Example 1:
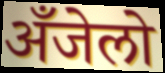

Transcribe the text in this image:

अँजेलो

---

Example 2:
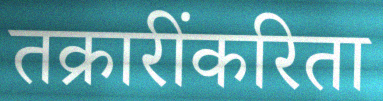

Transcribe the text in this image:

तक्रारींकरिता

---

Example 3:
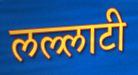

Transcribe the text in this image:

लल्लाटी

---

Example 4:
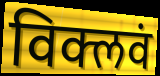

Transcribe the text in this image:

विक्लवं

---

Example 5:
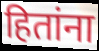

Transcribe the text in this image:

हितांना